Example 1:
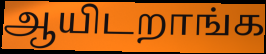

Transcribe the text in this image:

ஆயிடறாங்க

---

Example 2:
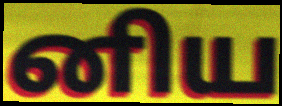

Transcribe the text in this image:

னிய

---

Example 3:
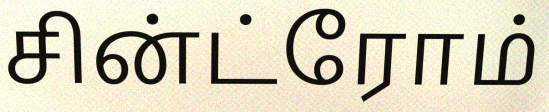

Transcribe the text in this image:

சின்ட்ரோம்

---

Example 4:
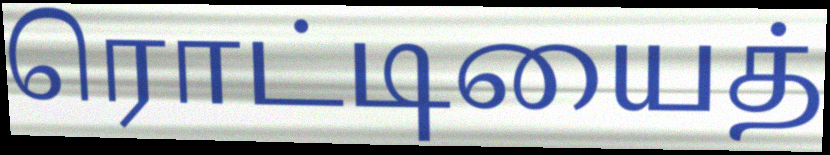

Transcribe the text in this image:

ரொட்டியைத்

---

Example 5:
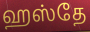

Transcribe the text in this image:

ஹஸ்தே